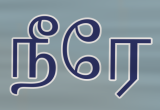
நீரே